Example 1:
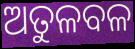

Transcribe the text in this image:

ଅତୁଳବଳ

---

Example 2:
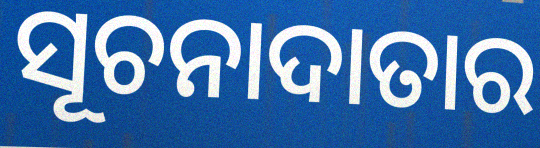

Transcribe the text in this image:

ସୂଚନାଦାତାର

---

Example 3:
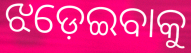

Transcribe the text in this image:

ଝଡ଼େଇବାକୁ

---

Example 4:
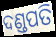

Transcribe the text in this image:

ଦଣ୍ଡପତି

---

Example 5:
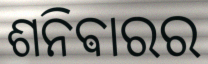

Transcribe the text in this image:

ଶନିଵାରର